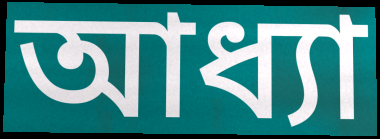
আধ্যা